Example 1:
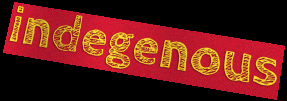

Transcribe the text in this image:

indegenous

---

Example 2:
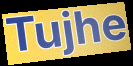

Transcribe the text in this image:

Tujhe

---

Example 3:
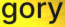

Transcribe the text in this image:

gory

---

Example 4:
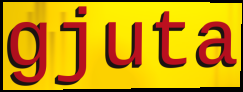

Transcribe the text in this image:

gjuta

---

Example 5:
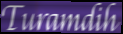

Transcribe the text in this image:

Turamdih